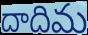
దాదిమ